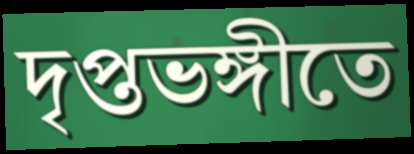
দৃপ্তভঙ্গীতে